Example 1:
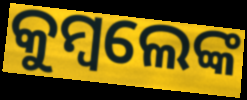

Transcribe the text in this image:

କୁମ୍ବଲେଙ୍କ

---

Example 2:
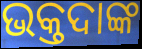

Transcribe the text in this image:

ଭକ୍ତଦାଙ୍କ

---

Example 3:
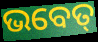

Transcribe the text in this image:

ଭବେତ୍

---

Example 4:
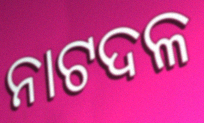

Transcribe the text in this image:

ନାଟଦଳ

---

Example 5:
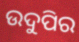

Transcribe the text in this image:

ଉଦୁପିର